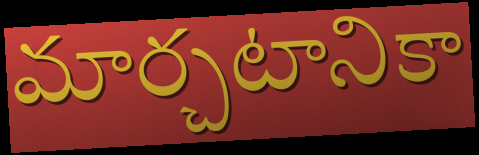
మార్చటానికా